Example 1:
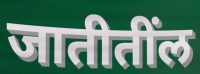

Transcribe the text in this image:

जातीतींल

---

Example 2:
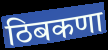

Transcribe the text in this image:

ठिबकणा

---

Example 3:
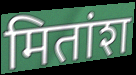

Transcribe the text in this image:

मितांश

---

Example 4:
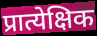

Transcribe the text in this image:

प्रात्येक्षिक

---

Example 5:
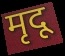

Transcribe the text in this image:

मृदू